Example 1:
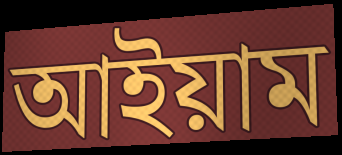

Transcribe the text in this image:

আইয়াম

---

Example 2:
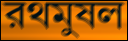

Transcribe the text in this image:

রথমুষল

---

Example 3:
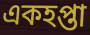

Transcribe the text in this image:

একহপ্তা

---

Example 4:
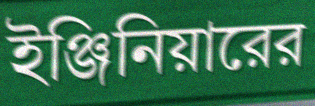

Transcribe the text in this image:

ইঞ্জিনিয়ারের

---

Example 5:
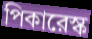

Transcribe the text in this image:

পিকারেস্ক